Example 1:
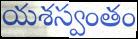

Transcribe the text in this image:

యశస్వంతం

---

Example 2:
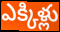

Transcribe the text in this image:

ఎక్కిళ్లు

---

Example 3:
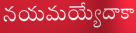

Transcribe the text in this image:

నయమయ్యేదాకా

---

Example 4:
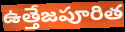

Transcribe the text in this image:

ఉత్తేజపూరిత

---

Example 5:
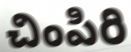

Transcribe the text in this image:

చింపిరి